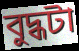
বুদ্ধটা